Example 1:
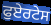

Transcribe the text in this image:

ਫੁਏਰਟੇਸ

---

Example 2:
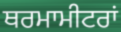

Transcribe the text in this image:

ਥਰਮਾਮੀਟਰਾਂ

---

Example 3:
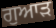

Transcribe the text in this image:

ਗੁਆੜ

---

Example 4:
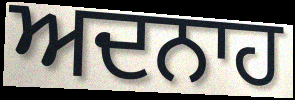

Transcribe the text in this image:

ਅਦਨਾਹ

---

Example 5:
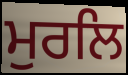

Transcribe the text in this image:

ਮੁਰਲਿ